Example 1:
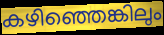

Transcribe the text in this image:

കഴിഞ്ഞെങ്കിലും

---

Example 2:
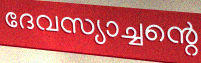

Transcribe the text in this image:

ദേവസ്യാച്ചന്റെ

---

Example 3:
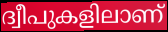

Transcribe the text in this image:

ദ്വീപുകളിലാണ്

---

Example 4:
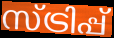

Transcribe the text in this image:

സ്ട്രിപ്പ്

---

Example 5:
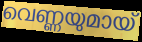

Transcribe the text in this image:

വെണ്ണയുമായ്